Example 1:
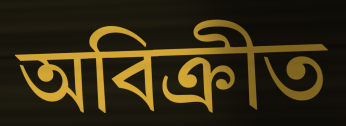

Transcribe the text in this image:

অবিক্রীত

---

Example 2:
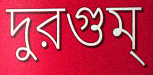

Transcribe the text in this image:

দুরগুম্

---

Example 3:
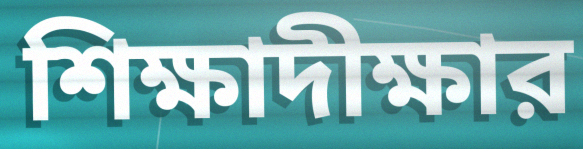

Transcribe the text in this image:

শিক্ষাদীক্ষার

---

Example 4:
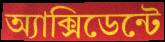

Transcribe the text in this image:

অ্যাক্সিডেন্টে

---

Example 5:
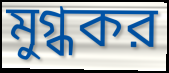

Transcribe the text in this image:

মুগ্ধকর